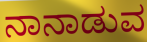
ನಾನಾಡುವ